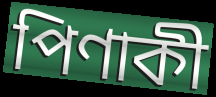
পিণাকী